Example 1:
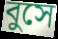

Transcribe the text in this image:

বুসে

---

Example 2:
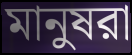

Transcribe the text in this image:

মানুষরা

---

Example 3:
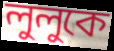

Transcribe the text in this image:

লুলুকে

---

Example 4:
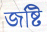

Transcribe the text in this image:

জষ্টি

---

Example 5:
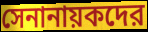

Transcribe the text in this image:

সেনানায়কদের